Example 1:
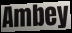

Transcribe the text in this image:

Ambey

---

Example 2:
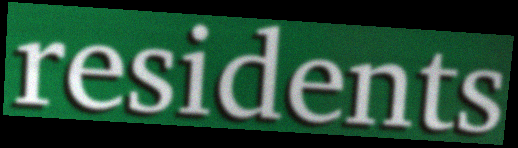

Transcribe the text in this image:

residents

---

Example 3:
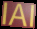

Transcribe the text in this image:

IAI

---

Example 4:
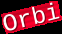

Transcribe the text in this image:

Orbi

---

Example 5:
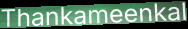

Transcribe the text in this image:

Thankameenkal